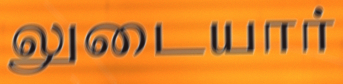
லுடையார்